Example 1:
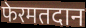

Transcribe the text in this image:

फेरमतदान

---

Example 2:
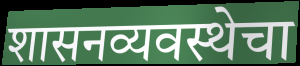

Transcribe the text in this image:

शासनव्यवस्थेचा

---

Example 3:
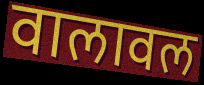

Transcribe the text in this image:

वालावल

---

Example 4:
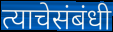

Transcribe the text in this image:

त्याचेसंबंधी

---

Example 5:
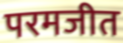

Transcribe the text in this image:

परमजीत